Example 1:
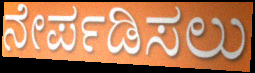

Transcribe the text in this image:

ನೇರ್ಪಡಿಸಲು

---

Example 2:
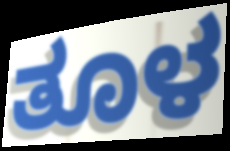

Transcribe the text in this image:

ತೂಳ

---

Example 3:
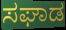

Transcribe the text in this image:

ಸಘಾಡ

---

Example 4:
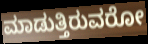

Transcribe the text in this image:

ಮಾಡುತ್ತಿರುವರೋ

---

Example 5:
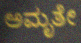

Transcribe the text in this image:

ಅಮೃತೇ